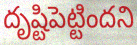
దృష్టిపెట్టిందని